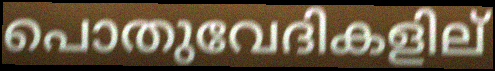
പൊതുവേദികളില്